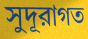
সুদূরাগত